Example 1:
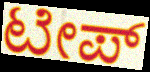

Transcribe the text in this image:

ಟೇಪ್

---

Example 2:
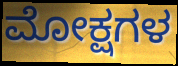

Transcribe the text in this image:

ಮೋಕ್ಷಗಳ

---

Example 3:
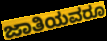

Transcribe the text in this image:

ಜಾತಿಯವರೂ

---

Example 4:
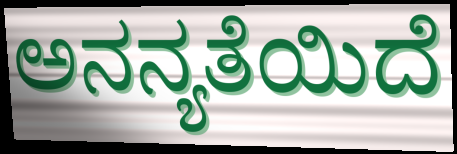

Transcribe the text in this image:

ಅನನ್ಯತೆಯಿದೆ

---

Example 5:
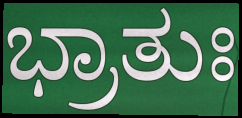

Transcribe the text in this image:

ಭ್ರಾತುಃ